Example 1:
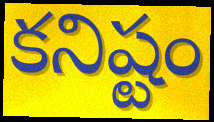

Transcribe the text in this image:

కనిష్టం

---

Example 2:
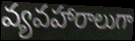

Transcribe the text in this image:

వ్యవహారాలుగా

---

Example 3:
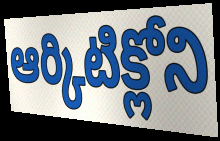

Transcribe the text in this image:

ఆర్కిటిక్లోని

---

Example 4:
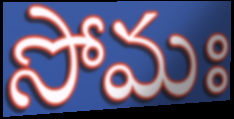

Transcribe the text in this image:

సోమః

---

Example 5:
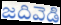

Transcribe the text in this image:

జదివెడి